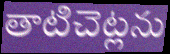
తాటిచెట్లను